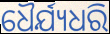
ଧୈର୍ଯ୍ୟଧରି